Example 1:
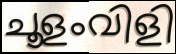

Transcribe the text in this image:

ചൂളംവിളി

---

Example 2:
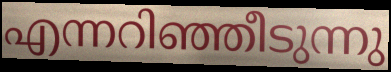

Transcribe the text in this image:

എന്നറിഞ്ഞീടുന്നു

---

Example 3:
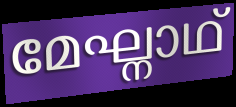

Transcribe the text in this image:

മേഘ്നാഥ്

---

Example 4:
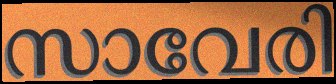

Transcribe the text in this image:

സാവേരി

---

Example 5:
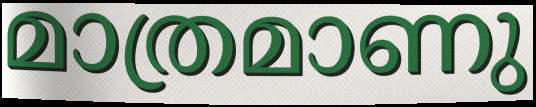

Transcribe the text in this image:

മാത്രമാണു